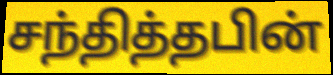
சந்தித்தபின்